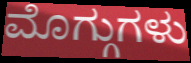
ಮೊಗ್ಗುಗಳು